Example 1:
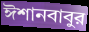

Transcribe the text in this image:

ঈশানবাবুর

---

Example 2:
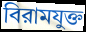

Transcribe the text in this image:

বিরামযুক্ত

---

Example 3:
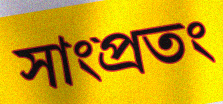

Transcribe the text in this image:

সাংপ্রতং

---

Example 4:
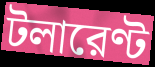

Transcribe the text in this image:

টলারেণ্ট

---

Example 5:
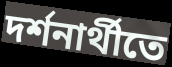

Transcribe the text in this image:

দর্শনার্থীতে